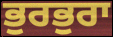
ਭੁਰਭੁਰਾ